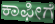
ಕಾಫೀಗೆ